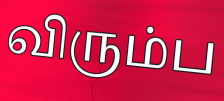
விரும்ப